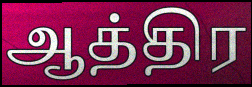
ஆத்திர